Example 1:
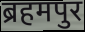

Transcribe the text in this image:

ब्रहमपुर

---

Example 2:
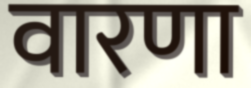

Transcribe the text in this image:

वारणा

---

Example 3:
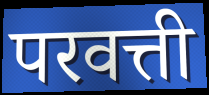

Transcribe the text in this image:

परवत्ती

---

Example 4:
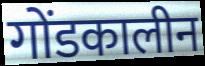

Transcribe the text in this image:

गोंडकालीन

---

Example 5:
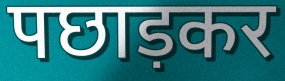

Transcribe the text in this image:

पछाड़कर